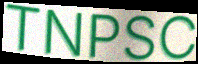
TNPSC